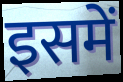
इसमें